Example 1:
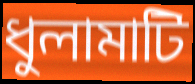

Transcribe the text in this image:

ধুলামাটি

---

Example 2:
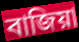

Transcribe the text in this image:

বাজিয়া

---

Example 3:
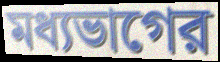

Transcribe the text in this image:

মধ্যভাগের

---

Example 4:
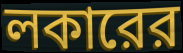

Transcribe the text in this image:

লকারের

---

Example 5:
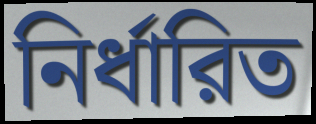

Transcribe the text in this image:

নির্ধারিত